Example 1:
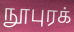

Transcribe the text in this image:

நூபுரக்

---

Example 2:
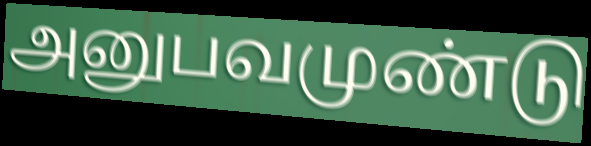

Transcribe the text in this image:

அனுபவமுண்டு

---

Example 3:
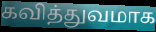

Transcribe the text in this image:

கவித்துவமாக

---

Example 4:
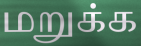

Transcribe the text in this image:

மறுக்க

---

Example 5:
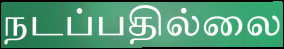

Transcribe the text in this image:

நடப்பதில்லை